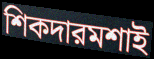
শিকদারমশাই